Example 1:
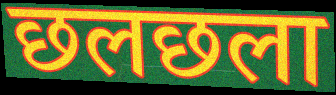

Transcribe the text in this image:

छलछला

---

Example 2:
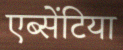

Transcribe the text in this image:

एब्सेंटिया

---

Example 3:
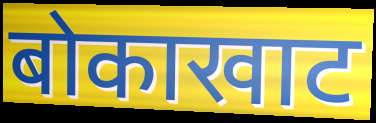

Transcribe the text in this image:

बोकाखाट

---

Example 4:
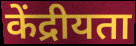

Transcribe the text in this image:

केंद्रीयता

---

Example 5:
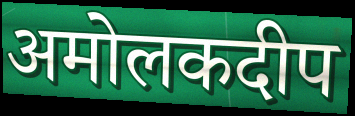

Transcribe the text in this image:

अमोलकदीप